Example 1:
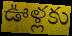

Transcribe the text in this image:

ఊళ్లకు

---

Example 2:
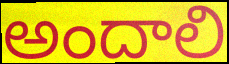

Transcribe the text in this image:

అందాలి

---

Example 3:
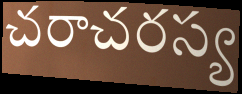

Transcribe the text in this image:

చరాచరస్య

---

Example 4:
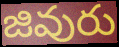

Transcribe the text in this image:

జివురు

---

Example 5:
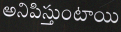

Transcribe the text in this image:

అనిపిస్తుంటాయి